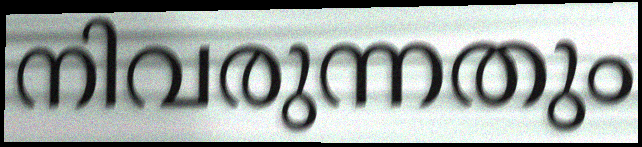
നിവരുന്നതും